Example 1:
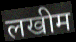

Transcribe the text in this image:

लखीम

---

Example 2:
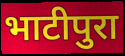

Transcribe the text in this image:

भाटीपुरा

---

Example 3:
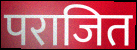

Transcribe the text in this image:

पराजित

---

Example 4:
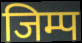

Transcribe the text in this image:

जिम्प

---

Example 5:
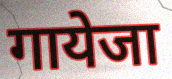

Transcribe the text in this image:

गायेजा